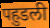
पहुडली